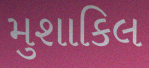
મુશાકિલ